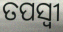
ତପସ୍ବୀ